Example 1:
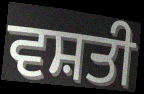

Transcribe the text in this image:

ਵਸ਼ਤੀ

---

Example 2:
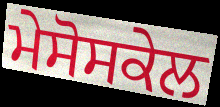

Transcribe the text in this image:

ਮੇਸੋਸਕੇਲ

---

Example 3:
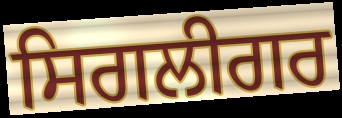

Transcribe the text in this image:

ਸਿਗਲੀਗਰ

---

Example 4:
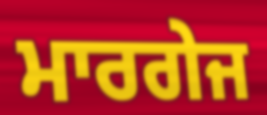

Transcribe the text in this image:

ਮਾਰਗੇਜ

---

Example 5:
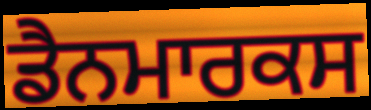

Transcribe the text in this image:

ਡੈਨਮਾਰਕਸ